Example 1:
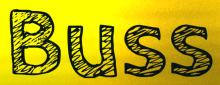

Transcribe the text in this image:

Buss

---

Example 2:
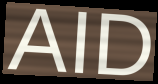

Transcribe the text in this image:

AID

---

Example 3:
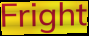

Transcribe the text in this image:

Fright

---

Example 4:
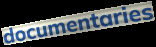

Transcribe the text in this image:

documentaries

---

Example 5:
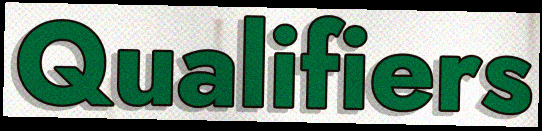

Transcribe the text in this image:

Qualifiers